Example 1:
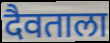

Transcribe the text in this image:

दैवताला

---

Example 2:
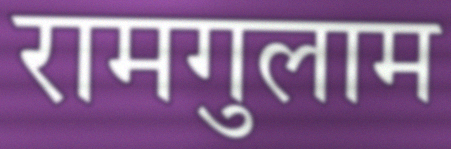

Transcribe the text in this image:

रामगुलाम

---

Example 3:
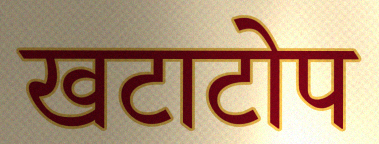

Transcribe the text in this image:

खटाटोप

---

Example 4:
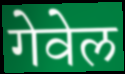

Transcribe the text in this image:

गेवेल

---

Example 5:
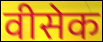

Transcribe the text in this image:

वीसेक